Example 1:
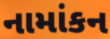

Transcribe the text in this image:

નામાંકન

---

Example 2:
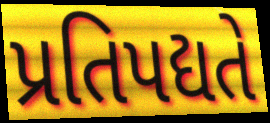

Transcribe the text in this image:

પ્રતિપદ્યતે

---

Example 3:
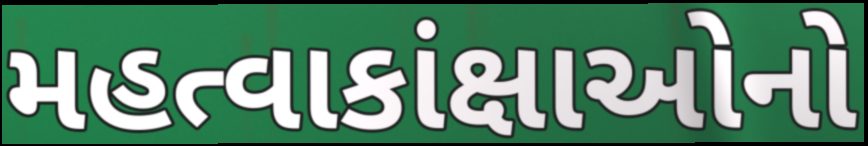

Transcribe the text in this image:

મહત્વાકાંક્ષાઓનો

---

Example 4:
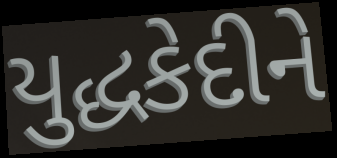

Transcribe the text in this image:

યુદ્ધકેદીને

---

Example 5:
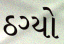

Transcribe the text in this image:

ઠગ્યો